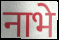
नाभे